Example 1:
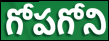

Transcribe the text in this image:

గోపగోని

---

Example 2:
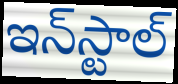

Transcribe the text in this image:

ఇన్‌స్టాల్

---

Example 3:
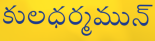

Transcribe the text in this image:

కులధర్మమున్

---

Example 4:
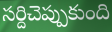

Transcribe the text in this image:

సర్దిచెప్పుకుంది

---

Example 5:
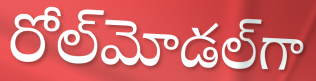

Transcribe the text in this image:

రోల్‌మోడల్‌గా